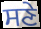
ਸਣੇ